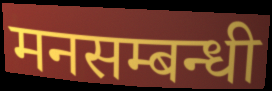
मनसम्बन्धी